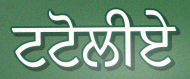
ਟਟੋਲੀਏ